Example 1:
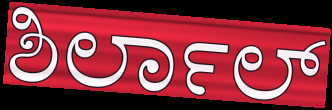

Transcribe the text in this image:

ಶಿರ್ಲಾಲ್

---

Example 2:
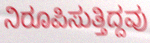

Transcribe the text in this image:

ನಿರೂಪಿಸುತ್ತಿದ್ದವು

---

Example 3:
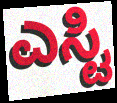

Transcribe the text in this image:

ಎಸ್ಟಿ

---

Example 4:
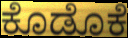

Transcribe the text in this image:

ಕೊಡೊಕೆ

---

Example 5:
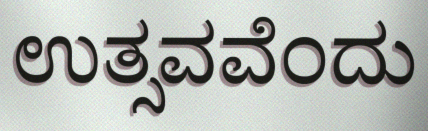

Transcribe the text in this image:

ಉತ್ಸವವೆಂದು